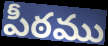
పీఠము